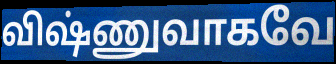
விஷ்ணுவாகவே